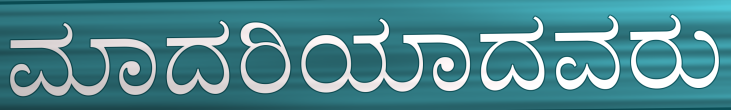
ಮಾದರಿಯಾದವರು